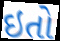
ઇતો